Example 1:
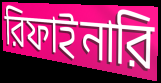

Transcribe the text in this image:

রিফাইনারি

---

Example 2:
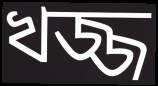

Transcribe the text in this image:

খজ্জ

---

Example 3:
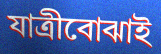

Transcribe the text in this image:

যাত্রীবোঝাই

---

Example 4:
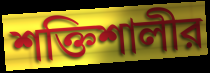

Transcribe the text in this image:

শক্তিশালীর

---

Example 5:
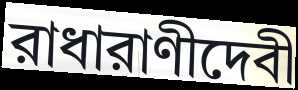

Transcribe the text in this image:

রাধারাণীদেবী